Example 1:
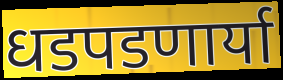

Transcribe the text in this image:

धडपडणार्या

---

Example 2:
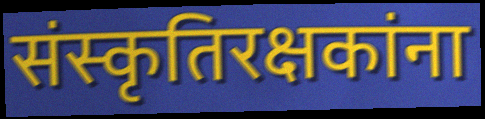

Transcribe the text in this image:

संस्कृतिरक्षकांना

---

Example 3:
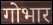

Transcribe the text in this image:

गोभार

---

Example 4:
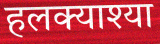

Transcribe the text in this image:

हलक्याश्या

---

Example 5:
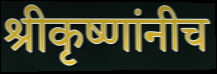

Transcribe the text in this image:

श्रीकृष्णांनीच